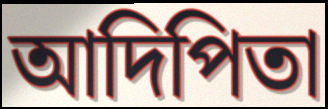
আদিপিতা